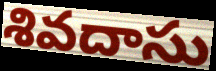
శివదాసు